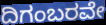
ದಿಗಂಬರವೇ